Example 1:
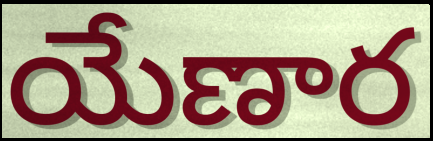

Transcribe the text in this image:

యేణార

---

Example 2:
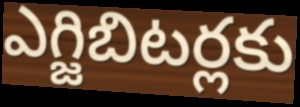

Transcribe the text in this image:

ఎగ్జిబిటర్లకు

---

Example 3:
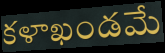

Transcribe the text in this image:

కళాఖండమే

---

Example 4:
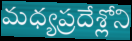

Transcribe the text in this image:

మధ్యప్రదేశ్లోని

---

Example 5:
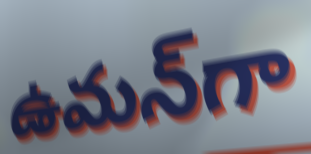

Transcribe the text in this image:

ఉమన్‌గా